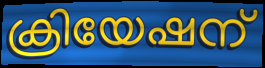
ക്രിയേഷന്